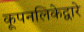
कूपनलिकेद्वारे